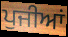
ਪੁਜੀਆਂ